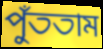
পুঁততাম